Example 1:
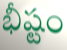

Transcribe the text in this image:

భీష్టం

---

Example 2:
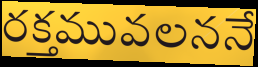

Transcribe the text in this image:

రక్తమువలననే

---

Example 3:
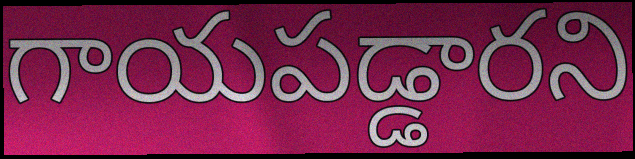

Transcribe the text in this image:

గాయపడ్డారని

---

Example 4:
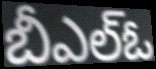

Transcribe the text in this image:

బీఎల్ఓ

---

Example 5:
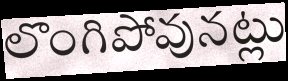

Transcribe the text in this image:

లొంగిపోవునట్లు